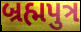
બ્રહ્મપુત્ર